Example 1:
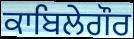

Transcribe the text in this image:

ਕਾਬਿਲੇਗੌਰ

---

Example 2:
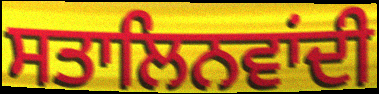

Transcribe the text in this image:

ਸਤਾਲਿਨਵਾਂਦੀ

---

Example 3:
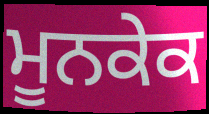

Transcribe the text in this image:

ਮੂਨਕੇਕ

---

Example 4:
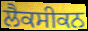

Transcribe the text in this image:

ਲੈਕਸੀਕਨ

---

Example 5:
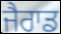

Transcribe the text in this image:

ਜੈਰਾਡ